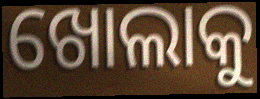
ଖୋଲାକୁ